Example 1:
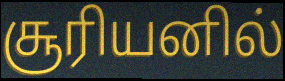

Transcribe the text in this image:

சூரியனில்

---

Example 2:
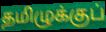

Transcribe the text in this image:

தமிழுக்குப்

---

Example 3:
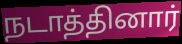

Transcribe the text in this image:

நடாத்தினார்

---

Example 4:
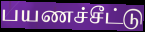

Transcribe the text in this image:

பயணச்சீட்டு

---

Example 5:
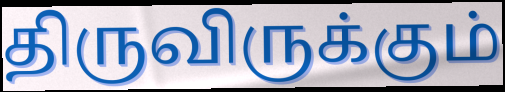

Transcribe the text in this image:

திருவிருக்கும்